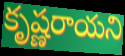
కృష్ణరాయని